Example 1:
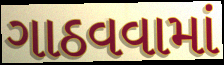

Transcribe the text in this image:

ગાઠવવામાં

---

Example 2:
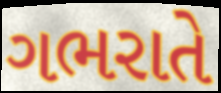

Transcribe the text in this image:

ગભરાતે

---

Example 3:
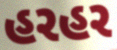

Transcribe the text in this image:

હરહર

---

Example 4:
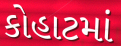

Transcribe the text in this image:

કોહાટમાં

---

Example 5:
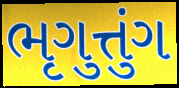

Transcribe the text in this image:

ભૃગુત્તુંગ